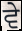
ਵੇ